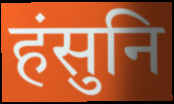
हंसुनि